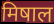
मिषाल